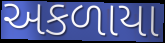
અકળાયા